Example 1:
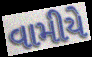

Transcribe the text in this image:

વામીયે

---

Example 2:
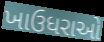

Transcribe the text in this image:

ખાઉધરાઓ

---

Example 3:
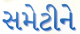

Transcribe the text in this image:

સમેટીને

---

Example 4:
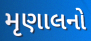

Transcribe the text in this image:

મૃણાલનો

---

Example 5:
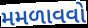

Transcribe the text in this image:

મમળાવવો